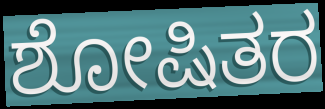
ಶೋಷಿತರ